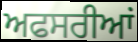
ਅਫਸਰੀਆਂ